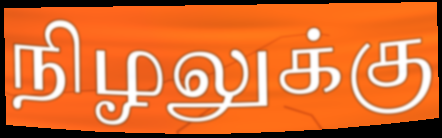
நிழலுக்கு